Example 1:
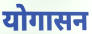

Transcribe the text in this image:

योगासन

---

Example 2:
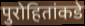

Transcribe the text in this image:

पुरोहितांकडे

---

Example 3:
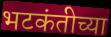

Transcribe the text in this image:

भटकंतीच्या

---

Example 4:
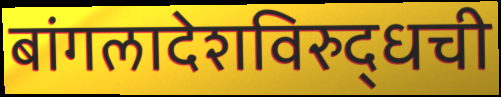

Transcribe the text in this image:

बांगलादेशविरुद्धची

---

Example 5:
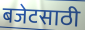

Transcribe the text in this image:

बजेटसाठी